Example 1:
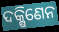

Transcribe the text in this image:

ଦକ୍ଷିଣେନ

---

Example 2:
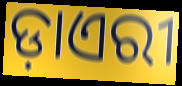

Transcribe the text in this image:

ଡ଼ାଏରୀ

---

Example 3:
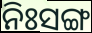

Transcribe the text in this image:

ନିଃସଙ୍ଗ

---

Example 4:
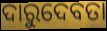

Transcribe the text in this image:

ଦାରୁଦେବତା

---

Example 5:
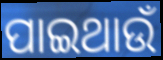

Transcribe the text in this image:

ପାଇଥାଉଁ